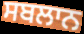
ਸਬਲਾਨ